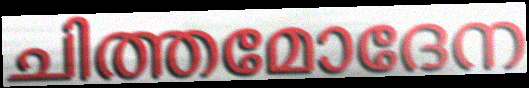
ചിത്തമോദേന